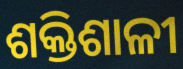
ଶକ୍ତିଶାଳୀ